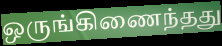
ஒருங்கிணைந்தது